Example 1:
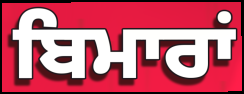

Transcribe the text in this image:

ਬਿਮਾਰਾਂ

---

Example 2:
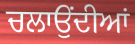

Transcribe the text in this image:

ਚਲਾਉਂਦੀਆਂ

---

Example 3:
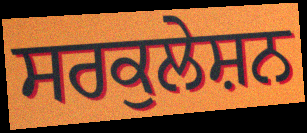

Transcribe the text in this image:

ਸਰਕੁਲੇਸ਼ਨ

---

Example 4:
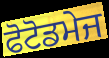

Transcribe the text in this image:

ਫੋਟੋਡਮੇਜ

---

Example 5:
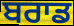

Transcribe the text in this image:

ਬਰਾਡ